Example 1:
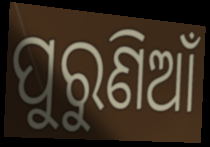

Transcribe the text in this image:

ପୁରୁଣିଆଁ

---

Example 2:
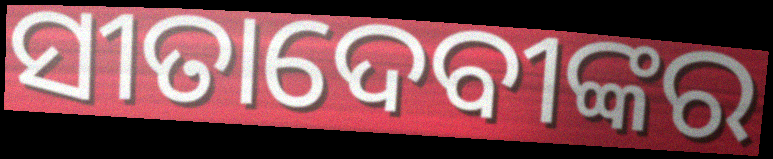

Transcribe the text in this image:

ସୀତାଦେବୀଙ୍କର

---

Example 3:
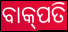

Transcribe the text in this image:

ବାକ୍‌ପତି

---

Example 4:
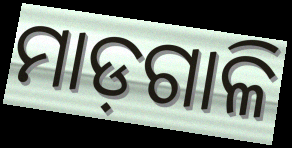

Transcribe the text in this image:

ମାଡ଼ଗାଳି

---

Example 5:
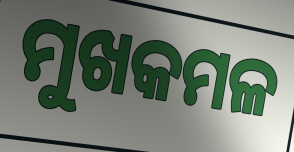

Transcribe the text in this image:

ମୁଖକମଳ